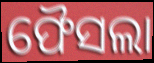
ଫୈସଲା